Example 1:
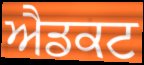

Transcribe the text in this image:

ਐਡਕਟ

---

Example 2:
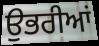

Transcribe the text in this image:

ਉਭਰੀਆਂ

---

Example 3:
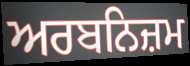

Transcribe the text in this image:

ਅਰਬਨਿਜ਼ਮ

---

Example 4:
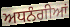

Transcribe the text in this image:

ਅਧਨੰਗੀਆਂ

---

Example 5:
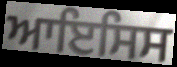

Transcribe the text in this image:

ਆਇਸਿਸ